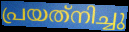
പ്രയത്‌നിച്ചു